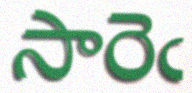
సారెఁ